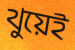
থুয়েই